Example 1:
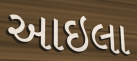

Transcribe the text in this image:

આઇલા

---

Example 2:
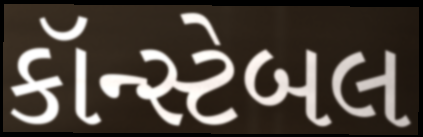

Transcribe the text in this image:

કૉન્સ્ટેબલ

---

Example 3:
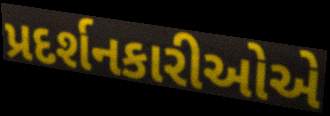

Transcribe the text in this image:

પ્રદર્શનકારીઓએ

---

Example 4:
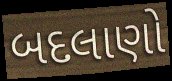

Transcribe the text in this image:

બદલાણો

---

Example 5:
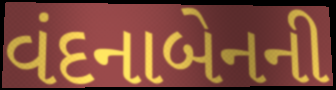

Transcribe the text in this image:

વંદનાબેનની